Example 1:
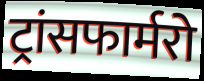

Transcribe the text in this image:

ट्रांसफार्मरो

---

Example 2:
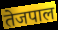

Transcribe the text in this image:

तेजपाल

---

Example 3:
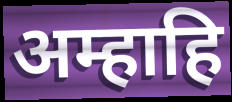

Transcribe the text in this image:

अम्हाहि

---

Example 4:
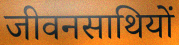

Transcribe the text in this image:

जीवनसाथियों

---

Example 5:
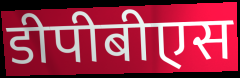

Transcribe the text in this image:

डीपीबीएस